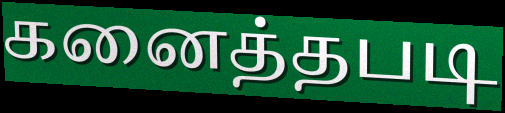
கனைத்தபடி